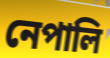
নেপালি